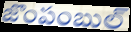
జొంపంబుల్